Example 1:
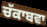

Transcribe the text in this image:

ਚੱਕਾਬਵਾ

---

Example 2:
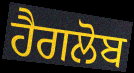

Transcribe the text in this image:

ਹੈਗਲੋਬ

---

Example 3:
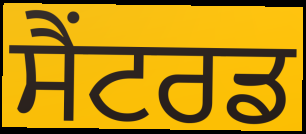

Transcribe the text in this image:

ਸੈਂਟਰਡ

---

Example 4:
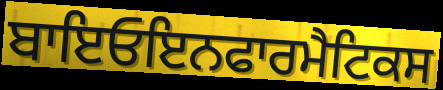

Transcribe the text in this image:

ਬਾਇਓਇਨਫਾਰਮੈਟਿਕਸ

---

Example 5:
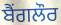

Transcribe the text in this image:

ਬੈੰਗਲੌਰ